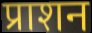
प्राशन